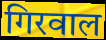
गिरवाल